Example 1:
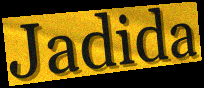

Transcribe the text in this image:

Jadida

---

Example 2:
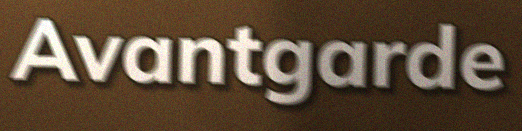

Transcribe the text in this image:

Avantgarde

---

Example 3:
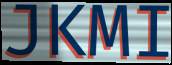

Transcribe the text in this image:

JKMI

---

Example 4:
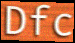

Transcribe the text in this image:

Dfc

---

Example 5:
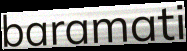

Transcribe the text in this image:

baramati